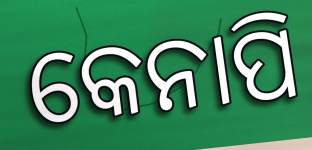
କେନାପି